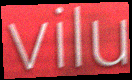
vilu